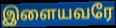
இளையவரே